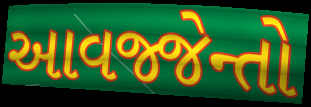
આવજ્જેન્તો